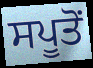
ਸਪੂਤੋਂ